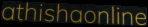
athishaonline